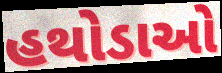
હથોડાઓ